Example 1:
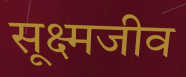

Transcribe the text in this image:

सूक्ष्मजीव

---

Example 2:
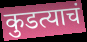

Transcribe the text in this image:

कुडत्याचं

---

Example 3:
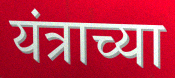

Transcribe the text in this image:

यंत्राच्या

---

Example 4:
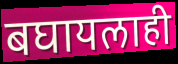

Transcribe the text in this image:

बघायलाही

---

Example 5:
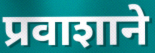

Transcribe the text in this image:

प्रवाशाने